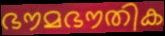
ഭൗമഭൗതിക